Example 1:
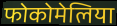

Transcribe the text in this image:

फोकोमेलिया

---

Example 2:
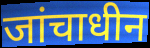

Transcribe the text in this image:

जांचाधीन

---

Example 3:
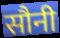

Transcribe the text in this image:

सौनी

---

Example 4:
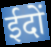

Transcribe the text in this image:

ईदों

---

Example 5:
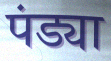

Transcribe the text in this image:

पंड्या